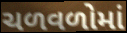
ચળવળોમાં